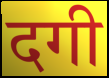
दगी